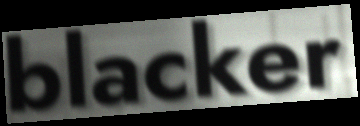
blacker